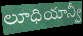
లూధియాన్వీ